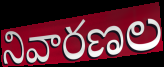
నివారణల